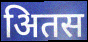
अितस